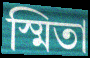
স্মিতা